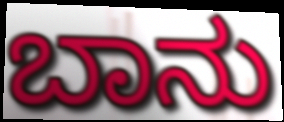
ಬಾನು